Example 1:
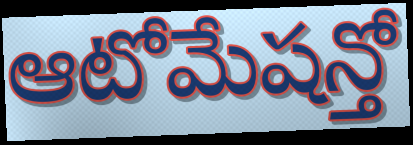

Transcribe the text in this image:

ఆటోమేషన్తో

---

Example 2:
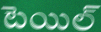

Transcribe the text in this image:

టెయిల్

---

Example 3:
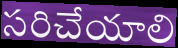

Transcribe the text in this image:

సరిచేయాలి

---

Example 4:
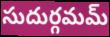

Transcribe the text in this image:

సుదుర్గమమ్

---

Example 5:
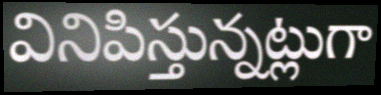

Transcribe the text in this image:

వినిపిస్తున్నట్లుగా